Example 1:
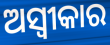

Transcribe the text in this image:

ଅସ୍ୱୀକାର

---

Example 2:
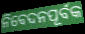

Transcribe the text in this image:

ନିବେଦନପୂର୍ବକ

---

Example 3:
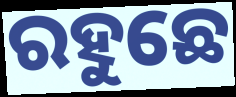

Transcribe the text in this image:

ରହୁଛେ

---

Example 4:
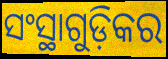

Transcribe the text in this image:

ସଂସ୍ଥାଗୁଡ଼ିକର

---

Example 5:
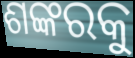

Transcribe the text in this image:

ଶଙ୍କରକୁ